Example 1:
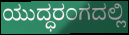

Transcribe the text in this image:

ಯುದ್ಧರಂಗದಲ್ಲಿ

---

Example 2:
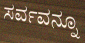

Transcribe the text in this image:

ಸರ್ವವನ್ನೂ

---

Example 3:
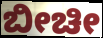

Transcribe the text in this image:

ಬೀಚೀ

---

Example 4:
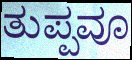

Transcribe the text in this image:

ತುಪ್ಪವೂ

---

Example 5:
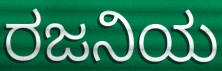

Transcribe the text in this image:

ರಜನಿಯ